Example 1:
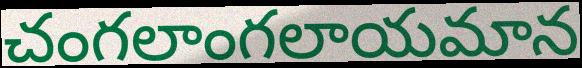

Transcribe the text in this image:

చంగలాంగలాయమాన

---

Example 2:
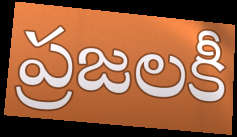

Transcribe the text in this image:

ప్రజలకీ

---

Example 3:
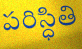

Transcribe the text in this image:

పరిస్ధితి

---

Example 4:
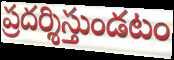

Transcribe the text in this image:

ప్రదర్శిస్తుండటం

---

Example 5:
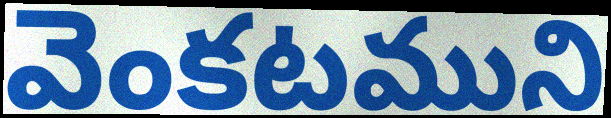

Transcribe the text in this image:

వెంకటముని